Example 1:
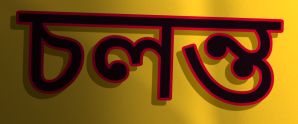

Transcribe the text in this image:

চলন্ত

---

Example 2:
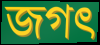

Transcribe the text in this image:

জগৎ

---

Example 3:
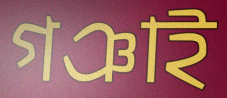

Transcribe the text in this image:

গঞাই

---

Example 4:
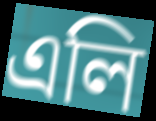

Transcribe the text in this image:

এলি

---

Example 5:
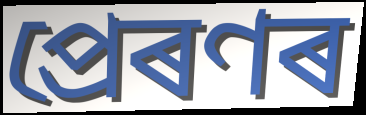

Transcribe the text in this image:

প্ৰেৰণৰ